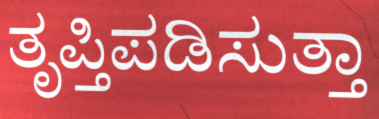
ತೃಪ್ತಿಪಡಿಸುತ್ತಾ